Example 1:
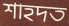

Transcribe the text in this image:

শাহদত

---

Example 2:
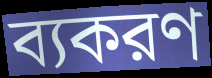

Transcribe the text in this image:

ব্যকরণ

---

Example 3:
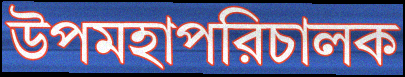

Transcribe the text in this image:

উপমহাপরিচালক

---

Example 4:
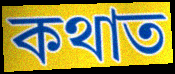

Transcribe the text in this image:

কথাত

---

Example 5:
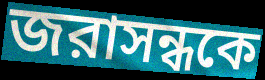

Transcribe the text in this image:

জরাসন্ধকে